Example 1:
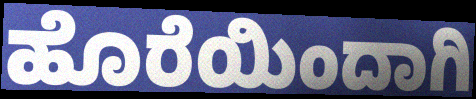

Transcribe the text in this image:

ಹೊರೆಯಿಂದಾಗಿ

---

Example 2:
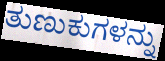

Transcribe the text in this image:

ತುಣುಕುಗಳನ್ನು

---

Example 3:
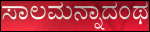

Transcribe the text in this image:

ಸಾಲಮನ್ನಾದಂಥ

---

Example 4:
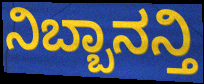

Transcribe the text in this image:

ನಿಬ್ಬಾನನ್ತಿ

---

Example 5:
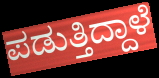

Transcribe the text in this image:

ಪಡುತ್ತಿದ್ದಾಳೆ